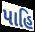
પાહિ